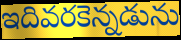
ఇదివరకెన్నడును